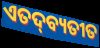
ଏତଦ୍‍ବ୍ୟତୀତ